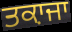
ਤਕ਼ਾਜਾ